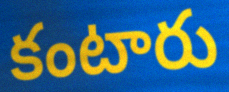
కంటారు